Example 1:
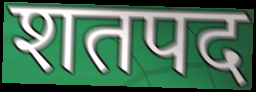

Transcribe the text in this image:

शतपद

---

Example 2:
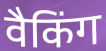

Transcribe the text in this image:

वैकिंग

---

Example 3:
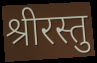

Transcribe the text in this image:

श्रीरस्तु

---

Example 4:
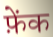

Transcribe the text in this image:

फ़ेंक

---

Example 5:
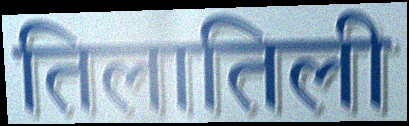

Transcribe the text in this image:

तिलातिली